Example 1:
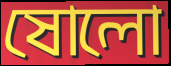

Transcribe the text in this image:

ষোলো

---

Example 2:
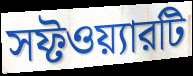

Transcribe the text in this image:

সফ্টওয়্যারটি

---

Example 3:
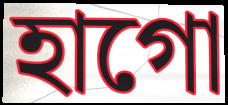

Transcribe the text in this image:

হাগো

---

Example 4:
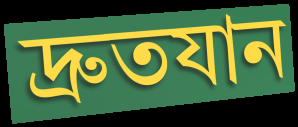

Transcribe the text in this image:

দ্রুতযান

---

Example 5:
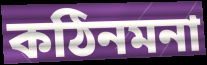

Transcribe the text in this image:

কঠিনমনা